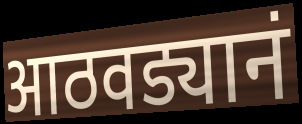
आठवड्यानं